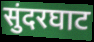
सुंदरघाट